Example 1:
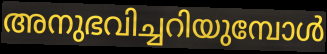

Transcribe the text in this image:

അനുഭവിച്ചറിയുമ്പോൾ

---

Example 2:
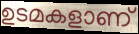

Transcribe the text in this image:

ഉടമകളാണ്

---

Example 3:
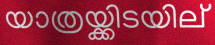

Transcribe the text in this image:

യാത്രയ്ക്കിടയില്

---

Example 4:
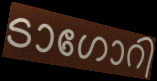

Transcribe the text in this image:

ടാഗോറി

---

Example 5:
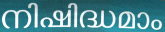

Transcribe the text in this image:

നിഷിദ്ധമാം